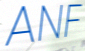
ANF